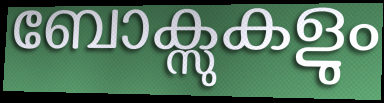
ബോക്സുകളും